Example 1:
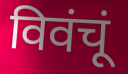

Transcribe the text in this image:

विवंचूं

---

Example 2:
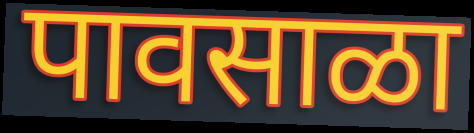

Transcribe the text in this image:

पावसाळा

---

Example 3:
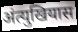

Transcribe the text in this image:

अंत्युखियास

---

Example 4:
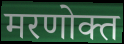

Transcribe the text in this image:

मरणोक्त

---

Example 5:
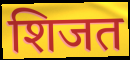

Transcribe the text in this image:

शिजत